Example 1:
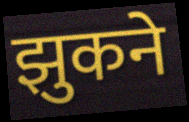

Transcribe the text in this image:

झुकने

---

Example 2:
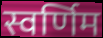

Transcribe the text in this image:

स्वर्णिम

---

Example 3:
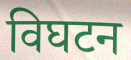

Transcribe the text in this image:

विघटन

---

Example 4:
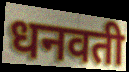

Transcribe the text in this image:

धनवती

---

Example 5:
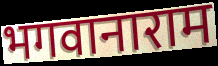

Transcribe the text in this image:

भगवानाराम